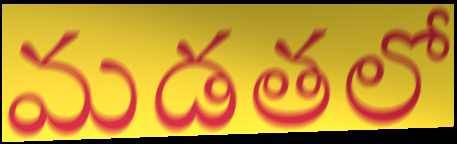
మడతలో